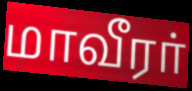
மாவீரர்